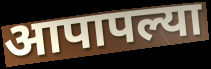
आपापल्या